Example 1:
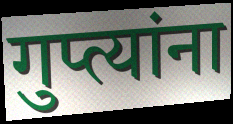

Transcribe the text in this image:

गुप्त्यांना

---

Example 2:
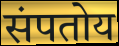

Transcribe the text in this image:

संपतोय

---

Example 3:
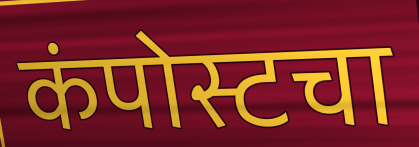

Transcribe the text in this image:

कंपोस्टचा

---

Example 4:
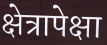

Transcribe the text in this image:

क्षेत्रापेक्षा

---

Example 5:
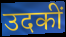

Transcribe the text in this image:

उदकीं